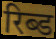
रिब्ड